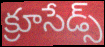
క్రూసేడ్స్